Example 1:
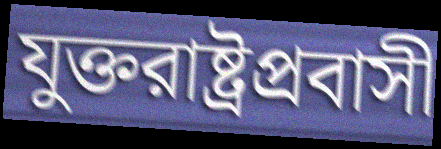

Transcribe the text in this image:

যুক্তরাষ্ট্রপ্রবাসী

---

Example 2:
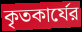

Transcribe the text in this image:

কৃতকার্যের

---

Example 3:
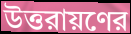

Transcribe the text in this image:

উত্তরায়ণের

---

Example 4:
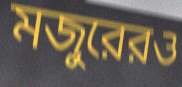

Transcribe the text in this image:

মজুরেরও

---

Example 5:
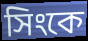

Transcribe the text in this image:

সিংকে